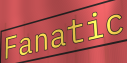
Fanatic